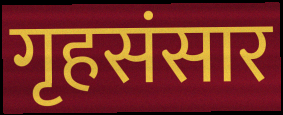
गृहसंसार